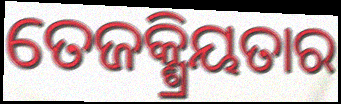
ତେଜକ୍ଶ୍ରିୟତାର